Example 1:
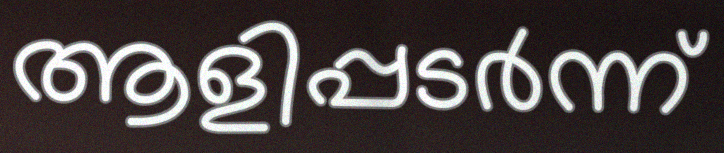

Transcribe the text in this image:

ആളിപ്പടർന്ന്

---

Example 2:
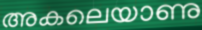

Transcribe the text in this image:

അകലെയാണു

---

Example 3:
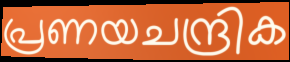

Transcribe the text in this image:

പ്രണയചന്ദ്രിക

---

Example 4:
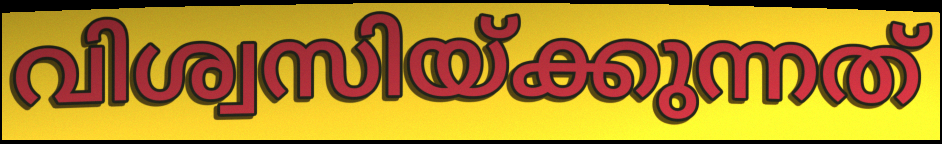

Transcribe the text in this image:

വിശ്വസിയ്ക്കുന്നത്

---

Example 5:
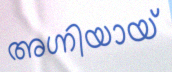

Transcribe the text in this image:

അഗ്നിയായ്